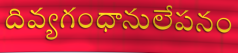
దివ్యగంధానులేపనం